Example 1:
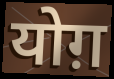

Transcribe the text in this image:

योग़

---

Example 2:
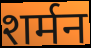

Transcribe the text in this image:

शर्मन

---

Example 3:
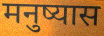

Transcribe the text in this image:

मनुष्यास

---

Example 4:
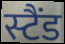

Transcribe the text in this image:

स्‍टैंड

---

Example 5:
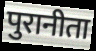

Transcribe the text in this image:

पुरानीता